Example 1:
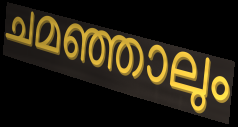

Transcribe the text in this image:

ചമഞ്ഞാലും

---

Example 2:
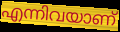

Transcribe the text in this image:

എന്നിവയാണ്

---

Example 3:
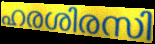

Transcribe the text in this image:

ഹരശിരസി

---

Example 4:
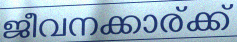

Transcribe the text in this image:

ജീവനക്കാര്ക്ക്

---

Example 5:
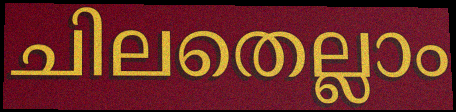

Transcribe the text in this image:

ചിലതെല്ലാം